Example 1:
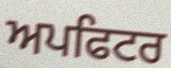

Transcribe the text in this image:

ਅਪਫਿਟਰ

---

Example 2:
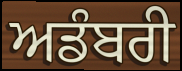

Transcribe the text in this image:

ਅਡੰਬਰੀ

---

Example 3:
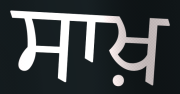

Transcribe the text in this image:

ਸਾਖ਼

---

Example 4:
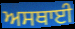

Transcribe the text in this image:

ਅਸਥਾਈ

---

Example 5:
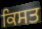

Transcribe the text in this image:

ਕਿਸਤ